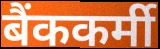
बैंककर्मी